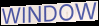
WINDOW